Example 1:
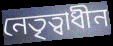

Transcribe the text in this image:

নেতৃত্বাধীন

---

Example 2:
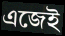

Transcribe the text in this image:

এজেই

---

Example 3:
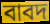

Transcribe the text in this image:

বাবদ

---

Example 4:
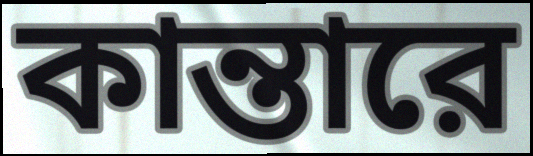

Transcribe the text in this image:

কান্তারে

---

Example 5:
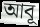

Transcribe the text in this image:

আবূ